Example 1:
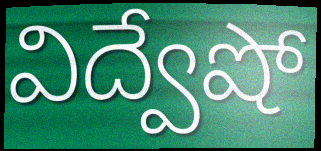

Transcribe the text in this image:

విద్వేషో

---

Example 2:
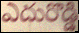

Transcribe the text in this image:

ఎదురొడ్డి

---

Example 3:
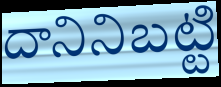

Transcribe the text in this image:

దానినిబట్టి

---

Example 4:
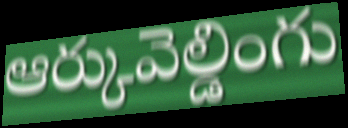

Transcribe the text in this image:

ఆర్కువెల్డింగు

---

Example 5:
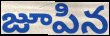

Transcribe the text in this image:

జూపిన